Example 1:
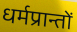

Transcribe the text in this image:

धर्मप्रान्तों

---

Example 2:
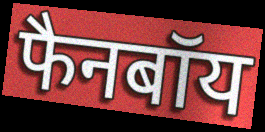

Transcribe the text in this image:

फैनबॉय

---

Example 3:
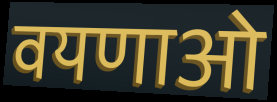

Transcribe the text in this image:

वयणाओ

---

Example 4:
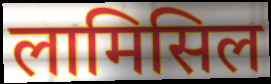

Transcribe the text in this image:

लामिसिल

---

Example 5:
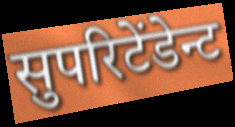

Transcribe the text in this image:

सुपरिटेंडेन्ट